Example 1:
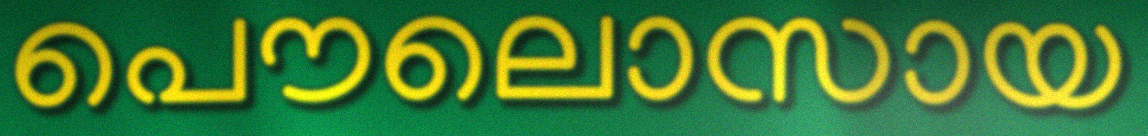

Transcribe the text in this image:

പൌലൊസായ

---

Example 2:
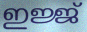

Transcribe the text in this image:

ഇജ്ജ്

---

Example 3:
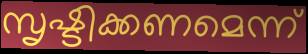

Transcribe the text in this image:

സൃഷ്ടിക്കണമെന്ന്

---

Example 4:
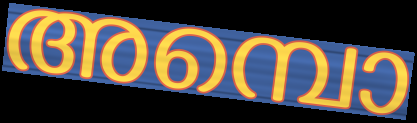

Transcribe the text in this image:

അമ്പൊ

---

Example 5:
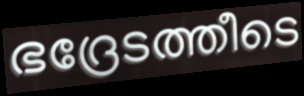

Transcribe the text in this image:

ഭദ്രേടത്തീടെ